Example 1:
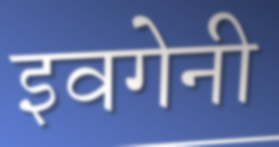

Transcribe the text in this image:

इवगेनी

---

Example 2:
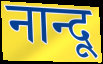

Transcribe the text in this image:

नान्दू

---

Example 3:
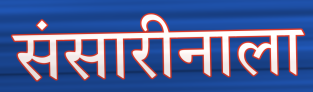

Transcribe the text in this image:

संसारीनाला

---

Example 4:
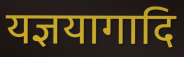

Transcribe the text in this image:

यज्ञयागादि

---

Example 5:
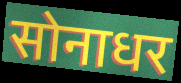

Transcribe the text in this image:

सोनाधर